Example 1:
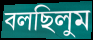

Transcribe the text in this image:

বলছিলুম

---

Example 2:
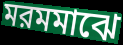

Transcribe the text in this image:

মরমমাঝে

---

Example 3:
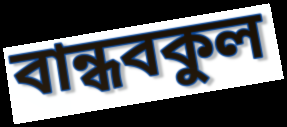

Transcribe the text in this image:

বান্ধবকুল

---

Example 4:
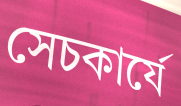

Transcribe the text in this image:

সেচকার্যে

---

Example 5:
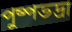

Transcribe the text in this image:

পুষ্পভদ্রা